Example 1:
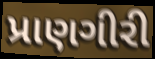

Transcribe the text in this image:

પ્રાણગીરી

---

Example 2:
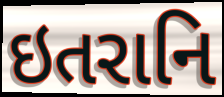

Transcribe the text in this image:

ઇતરાનિ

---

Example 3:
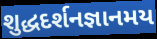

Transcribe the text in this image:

શુદ્ધદર્શનજ્ઞાનમય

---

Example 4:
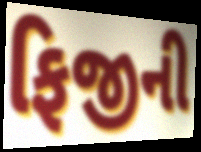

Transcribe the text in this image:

ફિજીની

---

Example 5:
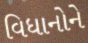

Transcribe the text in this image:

વિધાનોને